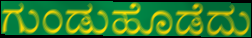
ಗುಂಡುಹೊಡೆದು